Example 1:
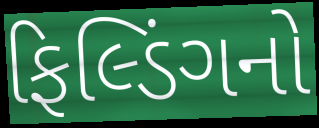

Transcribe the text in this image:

ફિલ્ડિંગનો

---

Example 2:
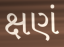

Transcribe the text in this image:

ક્ષણં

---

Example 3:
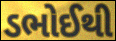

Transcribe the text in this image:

ડભોઈથી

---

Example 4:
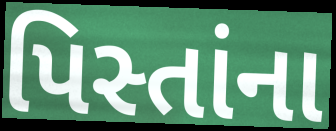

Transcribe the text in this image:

પિસ્તાંના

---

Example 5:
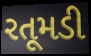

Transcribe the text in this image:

રતૂમડી